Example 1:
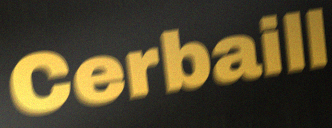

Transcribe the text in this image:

Cerbaill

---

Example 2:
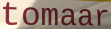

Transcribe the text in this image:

tomaar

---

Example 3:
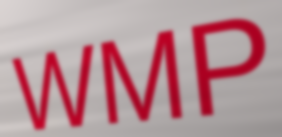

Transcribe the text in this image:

WMP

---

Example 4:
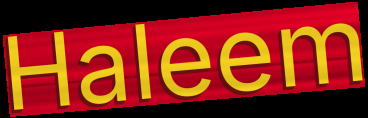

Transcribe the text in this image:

Haleem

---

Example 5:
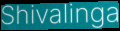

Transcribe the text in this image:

Shivalinga